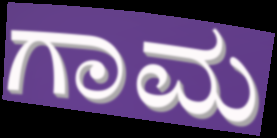
ಗಾಮ